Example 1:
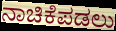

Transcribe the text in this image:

ನಾಚಿಕೆಪಡಲು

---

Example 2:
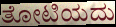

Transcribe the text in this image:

ತೋಟಿಯದು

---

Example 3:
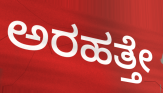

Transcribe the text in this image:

ಅರಹತ್ತೇ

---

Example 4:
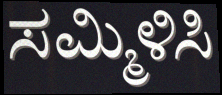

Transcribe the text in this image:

ಸಮ್ಮಿಳಿಸಿ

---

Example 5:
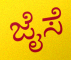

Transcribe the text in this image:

ಜೈಸೆ